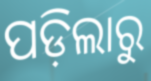
ପଡ଼ିଲାରୁ